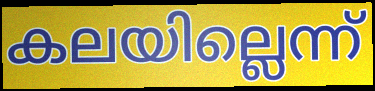
കലയില്ലെന്ന്